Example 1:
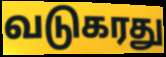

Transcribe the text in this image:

வடுகரது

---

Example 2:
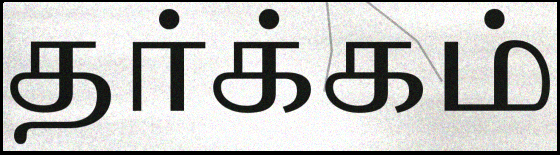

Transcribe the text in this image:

தர்க்கம்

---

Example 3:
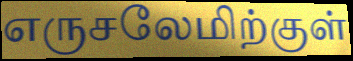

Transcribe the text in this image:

எருசலேமிற்குள்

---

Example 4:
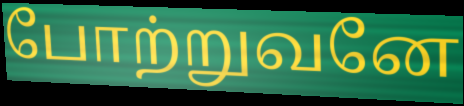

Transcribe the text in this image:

போற்றுவனே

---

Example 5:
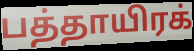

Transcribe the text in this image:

பத்தாயிரக்